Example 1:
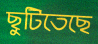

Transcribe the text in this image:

ছুটিতেছে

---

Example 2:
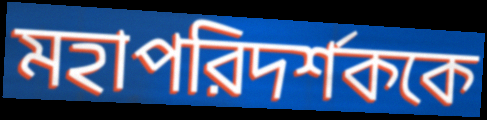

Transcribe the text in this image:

মহাপরিদর্শককে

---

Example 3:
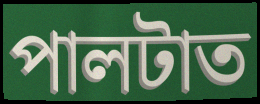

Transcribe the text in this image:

পালটাত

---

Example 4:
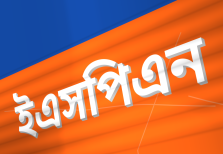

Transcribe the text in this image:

ইএসপিএন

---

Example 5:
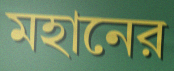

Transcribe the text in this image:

মহানের